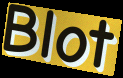
Blot